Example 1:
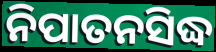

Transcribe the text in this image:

ନିପାତନସିଦ୍ଧ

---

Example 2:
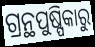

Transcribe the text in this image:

ଗ୍ରନ୍ଥପୁଷ୍ପିକାରୁ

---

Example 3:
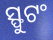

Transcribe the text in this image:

ସ୍ଫୁଟଂ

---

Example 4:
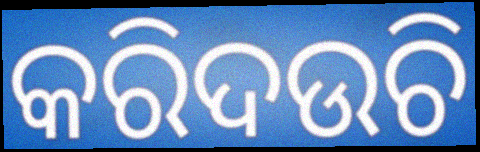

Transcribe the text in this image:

କରିଦଉଚି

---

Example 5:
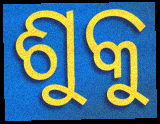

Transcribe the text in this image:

ଶୁକୁ